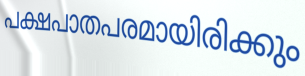
പക്ഷപാതപരമായിരിക്കും